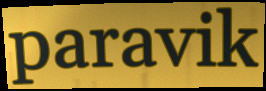
paravik